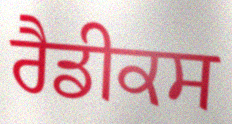
ਰੈਡੀਕਸ